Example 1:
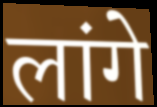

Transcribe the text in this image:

लांगे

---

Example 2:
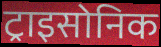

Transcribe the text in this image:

ट्राइसोनिक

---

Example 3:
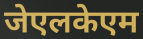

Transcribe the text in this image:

जेएलकेएम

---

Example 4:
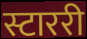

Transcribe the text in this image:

स्टाररी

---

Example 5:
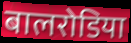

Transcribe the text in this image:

बालरोडिया